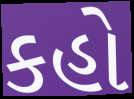
કહો